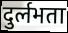
दुर्लभता